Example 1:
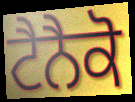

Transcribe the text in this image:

ਟੈਨੈਕੋ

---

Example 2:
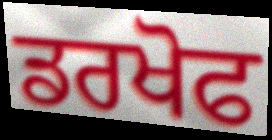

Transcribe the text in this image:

ਡਰਖੋਫ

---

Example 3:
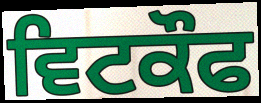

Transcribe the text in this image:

ਵਿਟਕੌਫ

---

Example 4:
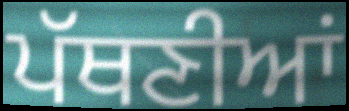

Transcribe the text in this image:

ਪੱਥਣੀਆਂ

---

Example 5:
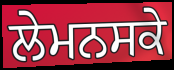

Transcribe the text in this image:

ਲੇਮਨਸਕੇ